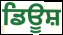
ਡਿਊਸ਼